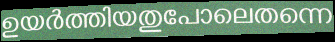
ഉയർത്തിയതുപോലെതന്നെ